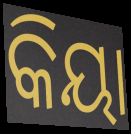
କିୟା